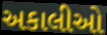
અકાલીઓ